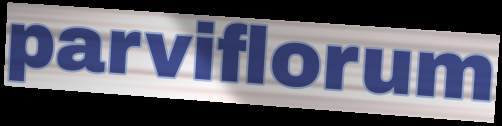
parviflorum